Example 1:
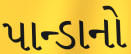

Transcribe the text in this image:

પાન્ડાનો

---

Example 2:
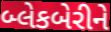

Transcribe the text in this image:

બ્લેકબેરીને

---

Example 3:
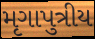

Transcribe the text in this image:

મૃગાપુત્રીય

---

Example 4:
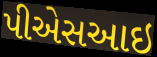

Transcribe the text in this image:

પીએસઆઇ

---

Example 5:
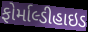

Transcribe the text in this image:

ફોર્માલ્ડીહાઇડ